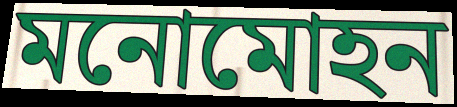
মনোমোহন